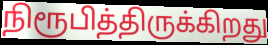
நிரூபித்திருக்கிறது